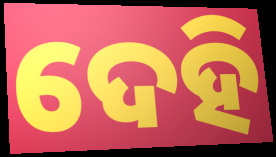
ଦେହି